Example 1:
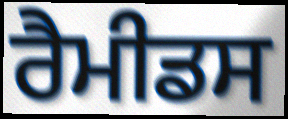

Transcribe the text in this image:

ਰੈਮੀਡਸ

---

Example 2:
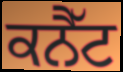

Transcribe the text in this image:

ਕਨੈੱਟ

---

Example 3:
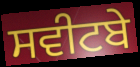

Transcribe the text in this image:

ਸਵੀਟਬੇ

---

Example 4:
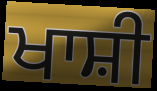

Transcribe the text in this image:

ਖਾਸ਼ੀ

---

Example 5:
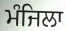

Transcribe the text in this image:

ਮੰਜਿਲਾ